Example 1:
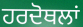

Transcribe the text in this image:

ਹਰਦੋਥਲਾਂ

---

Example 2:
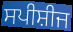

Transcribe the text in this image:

ਸਪੀਸ਼ੀਜ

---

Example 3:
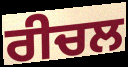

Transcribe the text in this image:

ਰੀਚਲ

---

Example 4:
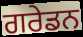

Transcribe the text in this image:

ਗਰੇਡਨ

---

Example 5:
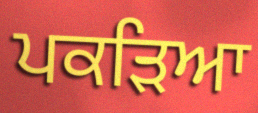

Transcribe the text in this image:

ਪਕੜਿਆ